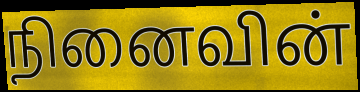
நினைவின்